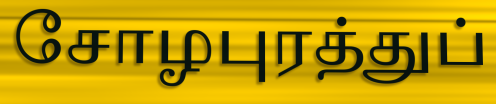
சோழபுரத்துப்